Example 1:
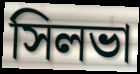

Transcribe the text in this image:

সিলভা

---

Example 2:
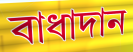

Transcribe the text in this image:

বাধাদান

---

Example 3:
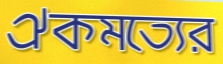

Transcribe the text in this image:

ঐকমত্যের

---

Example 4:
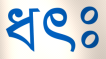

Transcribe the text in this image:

ধৎঃ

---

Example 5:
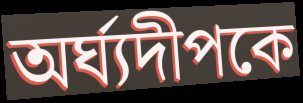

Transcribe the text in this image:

অর্ঘ্যদীপকে